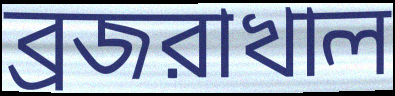
ব্রজরাখাল